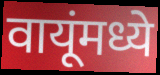
वायूंमध्ये